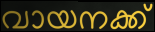
വായനക്ക്